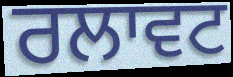
ਰਲਾਵਟ